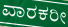
ವಾರಕರೀ